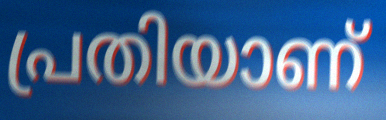
പ്രതിയാണ്